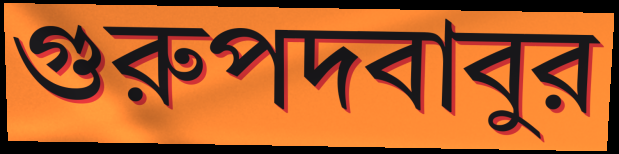
গুরুপদবাবুর